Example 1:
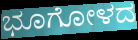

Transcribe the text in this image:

ಭೂಗೋಳದ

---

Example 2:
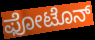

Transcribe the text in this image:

ಫೋಟೊನ್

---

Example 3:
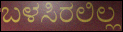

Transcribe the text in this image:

ಬಳಸಿರಲಿಲ್ಲ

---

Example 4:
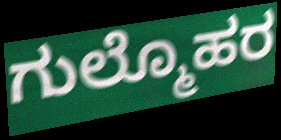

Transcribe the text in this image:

ಗುಲ್ಮೊಹರ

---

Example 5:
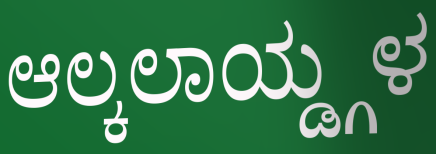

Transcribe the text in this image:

ಆಲ್ಕಲಾಯ್ಡ್ಗಳ